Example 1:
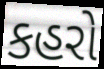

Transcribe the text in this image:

કહરો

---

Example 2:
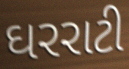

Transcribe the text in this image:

ઘરરાટી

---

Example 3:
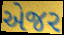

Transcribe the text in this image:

એજર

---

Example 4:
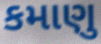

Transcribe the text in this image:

કમાણુ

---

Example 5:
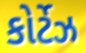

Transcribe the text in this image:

કોર્ટેઝ